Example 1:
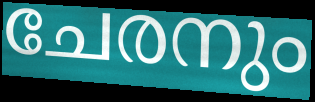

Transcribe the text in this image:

ചേരനും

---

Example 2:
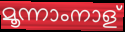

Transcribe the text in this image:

മൂന്നാംനാള്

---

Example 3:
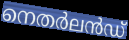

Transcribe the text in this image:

നെതർലൻഡ്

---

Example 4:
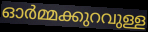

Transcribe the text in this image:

ഓർമ്മക്കുറവുള്ള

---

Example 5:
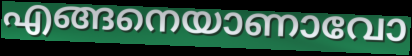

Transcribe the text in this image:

എങ്ങനെയാണാവോ